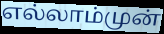
எல்லாம்முன்